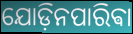
ଯୋଡ଼ିନପାରିଵା